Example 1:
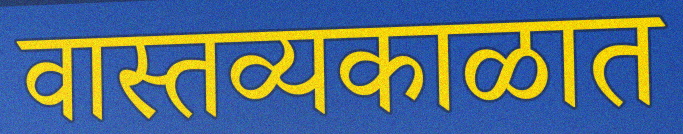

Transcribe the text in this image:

वास्तव्यकाळात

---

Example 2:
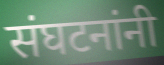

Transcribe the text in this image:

संघटनांनी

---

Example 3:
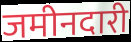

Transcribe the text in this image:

जमीनदारी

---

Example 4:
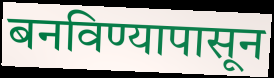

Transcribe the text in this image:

बनविण्यापासून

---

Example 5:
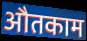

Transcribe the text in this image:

औतकाम